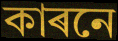
কাৰনে